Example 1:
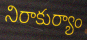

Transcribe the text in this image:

నిరాకుర్యాం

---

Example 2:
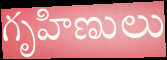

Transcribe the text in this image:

గృహిణులు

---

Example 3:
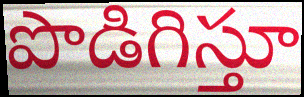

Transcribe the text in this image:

పొడిగిస్తూ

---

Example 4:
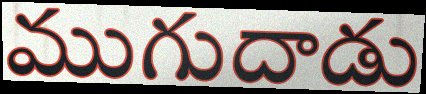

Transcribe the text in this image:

ముగుదాడు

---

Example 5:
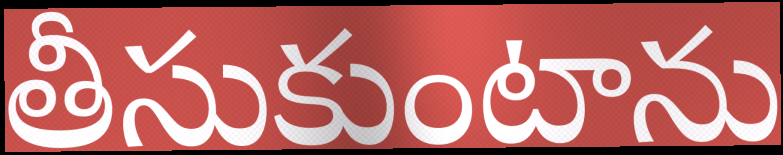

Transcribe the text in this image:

తీసుకుంటాను